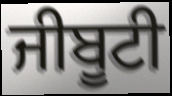
ਜੀਬੂਟੀ